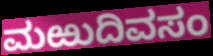
ಮಱುದಿವಸಂ